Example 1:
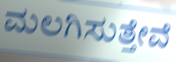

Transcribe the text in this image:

ಮಲಗಿಸುತ್ತೇವೆ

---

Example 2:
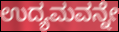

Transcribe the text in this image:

ಉದ್ಯಮವನ್ನೇ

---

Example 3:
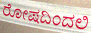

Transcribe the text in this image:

ರೋಷದಿಂದಲಿ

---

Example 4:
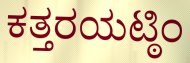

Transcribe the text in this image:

ಕತ್ತರಯಟ್ಠಿಂ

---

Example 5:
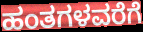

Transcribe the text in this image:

ಹಂತಗಳವರೆಗೆ